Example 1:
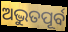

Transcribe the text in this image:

ଅଦ୍ଭୁତପୂର୍ବ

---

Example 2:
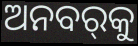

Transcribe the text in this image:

ଅନବର୍‌କୁ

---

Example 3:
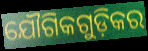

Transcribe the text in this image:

ଯୌଗିକଗୁଡ଼ିକର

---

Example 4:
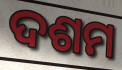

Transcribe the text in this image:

ଦଶମ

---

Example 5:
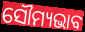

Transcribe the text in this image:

ସୌମ୍ୟଭାବ